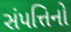
સંપત્તિનો